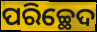
ପରିଚ୍ଛେଦ